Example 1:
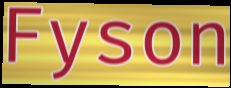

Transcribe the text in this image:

Fyson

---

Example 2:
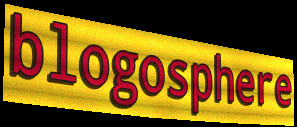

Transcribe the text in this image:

blogosphere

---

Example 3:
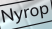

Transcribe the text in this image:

Nyrop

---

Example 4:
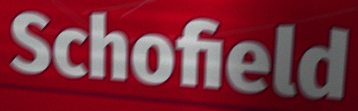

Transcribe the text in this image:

Schofield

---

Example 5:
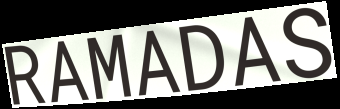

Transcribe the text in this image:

RAMADAS